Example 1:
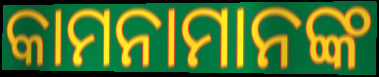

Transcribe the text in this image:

କାମନାମାନଙ୍କ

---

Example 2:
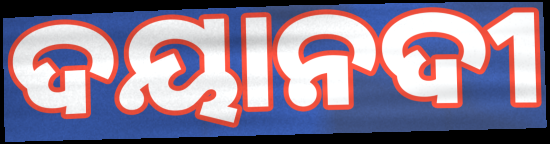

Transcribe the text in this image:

ଦୟାନଦୀ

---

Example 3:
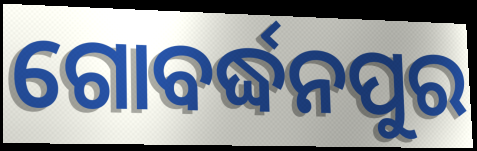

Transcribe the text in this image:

ଗୋବର୍ଦ୍ଧନପୁର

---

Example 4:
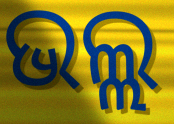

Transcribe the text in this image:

ଭଲ୍ଲ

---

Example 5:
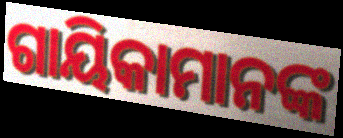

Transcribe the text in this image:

ଗାୟିକାମାନଙ୍କ